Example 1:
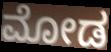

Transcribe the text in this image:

ಮೋಡ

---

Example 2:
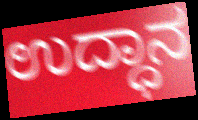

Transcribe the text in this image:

ಉದ್ಧಾನ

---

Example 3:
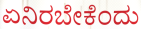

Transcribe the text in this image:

ಏನಿರಬೇಕೆಂದು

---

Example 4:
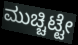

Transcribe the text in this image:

ಮುಚ್ಚಿಟ್ಟೇ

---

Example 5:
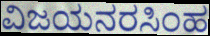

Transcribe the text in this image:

ವಿಜಯನರಸಿಂಹ